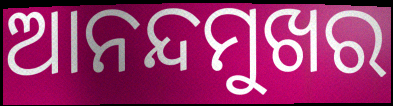
ଆନନ୍ଦମୁଖର